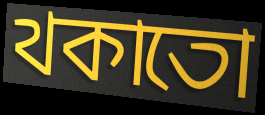
থকাতো